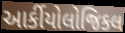
આર્કીયોલોજિકલ